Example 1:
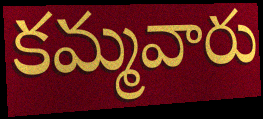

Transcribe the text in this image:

కమ్మవారు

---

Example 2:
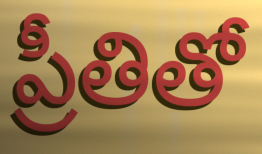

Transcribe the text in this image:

ప్రీతితో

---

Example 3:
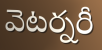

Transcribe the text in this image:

వెటర్నరీ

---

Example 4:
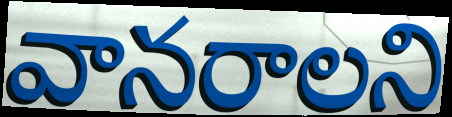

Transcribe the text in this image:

వానరాలని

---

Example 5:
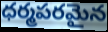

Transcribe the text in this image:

ధర్మపరమైన